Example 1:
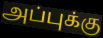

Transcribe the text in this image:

அப்புக்கு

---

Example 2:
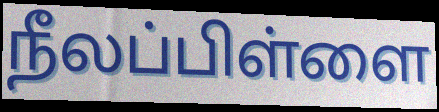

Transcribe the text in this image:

நீலப்பிள்ளை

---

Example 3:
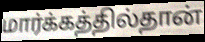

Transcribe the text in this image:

மார்க்கத்தில்தான்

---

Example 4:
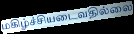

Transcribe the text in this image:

மகிழ்ச்சியடைவதில்லை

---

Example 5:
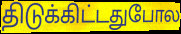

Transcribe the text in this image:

திடுக்கிட்டதுபோல